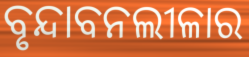
ବୃନ୍ଦାବନଲୀଳାର